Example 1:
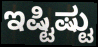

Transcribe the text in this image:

ಇಷ್ಟಿಷ್ಟು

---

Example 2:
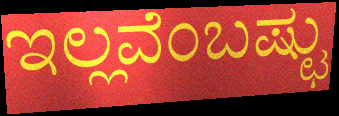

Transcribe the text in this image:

ಇಲ್ಲವೆಂಬಷ್ಟು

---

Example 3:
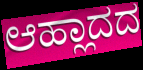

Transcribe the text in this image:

ಆಹ್ಲಾದದ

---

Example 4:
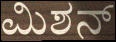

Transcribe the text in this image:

ಮಿಶನ್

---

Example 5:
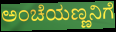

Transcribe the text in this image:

ಅಂಚೆಯಣ್ಣನಿಗೆ